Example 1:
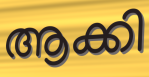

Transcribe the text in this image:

ആക്കി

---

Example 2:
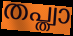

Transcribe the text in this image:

തപ്ത്വാ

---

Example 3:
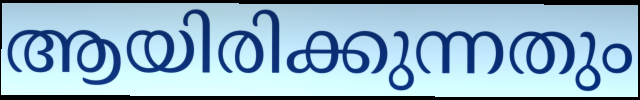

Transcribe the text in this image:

ആയിരിക്കുന്നതും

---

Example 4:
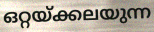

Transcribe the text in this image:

ഒറ്റയ്ക്കലയുന്ന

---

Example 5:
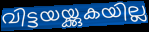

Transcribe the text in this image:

വിട്ടയയ്ക്കുകയില്ല